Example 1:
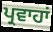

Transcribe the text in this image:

ਪ੍ਰਵਾਹਾਂ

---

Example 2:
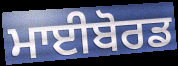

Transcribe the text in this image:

ਮਾਈਬੋਰਡ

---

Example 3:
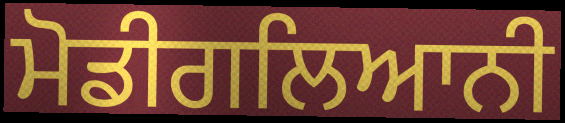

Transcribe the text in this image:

ਮੋਡੀਗਲਿਆਨੀ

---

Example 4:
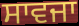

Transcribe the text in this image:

ਸਾਵਜਾ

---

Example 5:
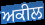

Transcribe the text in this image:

ਅਕੀਲ